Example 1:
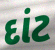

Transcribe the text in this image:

દાંટ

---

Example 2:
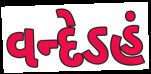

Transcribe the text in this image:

વન્દેઽહં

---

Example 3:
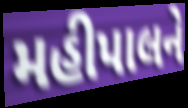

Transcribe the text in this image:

મહીપાલને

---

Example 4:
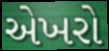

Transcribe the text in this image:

એખરો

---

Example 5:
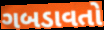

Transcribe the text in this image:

ગબડાવતો